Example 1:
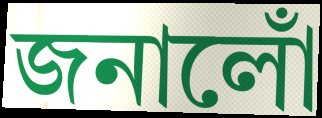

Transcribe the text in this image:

জনালোঁ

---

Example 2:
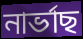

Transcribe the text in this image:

নাৰ্ভাছ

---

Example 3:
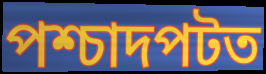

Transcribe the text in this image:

পশ্চাদপটত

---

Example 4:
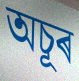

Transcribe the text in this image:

অচূৰ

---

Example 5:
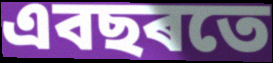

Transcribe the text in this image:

এবছৰতে